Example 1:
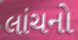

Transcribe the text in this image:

લાંચનો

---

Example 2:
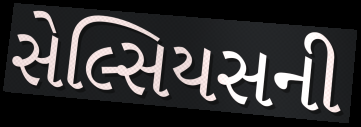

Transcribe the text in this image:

સેલ્સિયસની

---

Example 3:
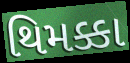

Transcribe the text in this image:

થિમક્કા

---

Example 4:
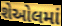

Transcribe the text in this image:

શેઓલમાં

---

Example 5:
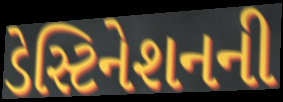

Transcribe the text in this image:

ડેસ્ટિનેશનની